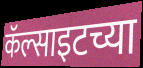
कॅल्साइटच्या